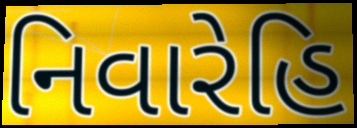
નિવારેહિ